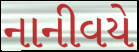
નાનીવયે